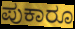
ಪುಕಾರೂ